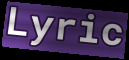
Lyric